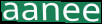
aanee